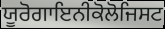
ਯੂਰੋਗਾਇਨੀਕੋਲੋਜਿਸਟ